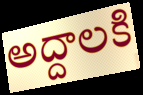
అద్దాలకి